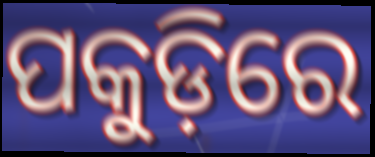
ପକୁଡ଼ିରେ